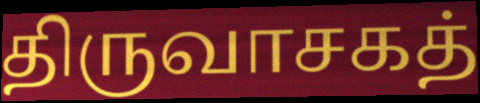
திருவாசகத்